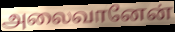
அலைவானேன்